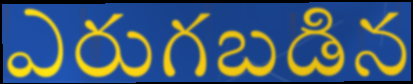
ఎరుగబడిన